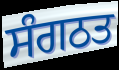
ਸੰਗਠਤ